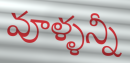
వూళ్ళన్నీ